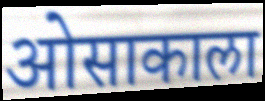
ओसाकाला